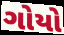
ગોયો